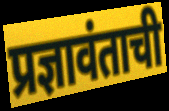
प्रज्ञावंताची